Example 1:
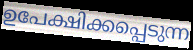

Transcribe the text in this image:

ഉപേക്ഷിക്കപ്പെടുന്ന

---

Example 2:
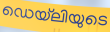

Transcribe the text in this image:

ഡെയ്‌ലിയുടെ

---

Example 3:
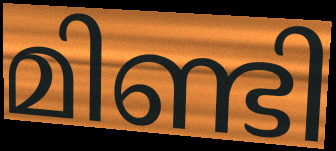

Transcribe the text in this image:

മിണ്ടി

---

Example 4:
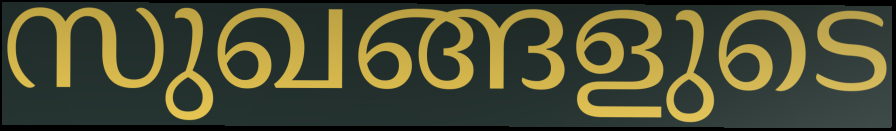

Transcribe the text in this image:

സുഖങ്ങളുടെ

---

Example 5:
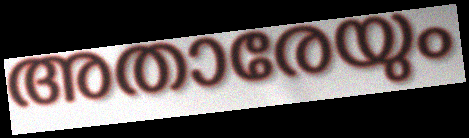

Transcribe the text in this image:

അതാരേയും